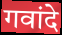
गवांदे